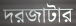
দরজাটার